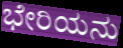
ಭೇರಿಯನು